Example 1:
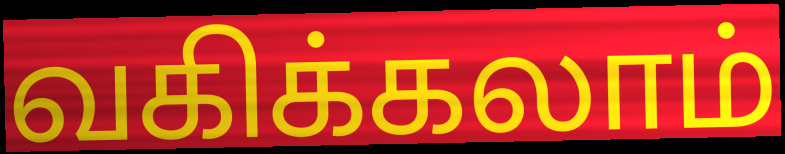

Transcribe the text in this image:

வகிக்கலாம்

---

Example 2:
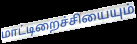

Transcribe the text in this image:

மாட்டிறைச்சியையும்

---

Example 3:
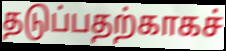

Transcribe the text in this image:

தடுப்பதற்காகச்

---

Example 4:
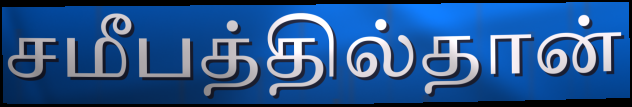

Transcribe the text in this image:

சமீபத்தில்தான்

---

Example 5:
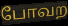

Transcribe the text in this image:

போவற